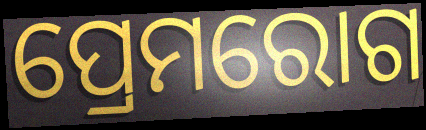
ପ୍ରେମରୋଗ